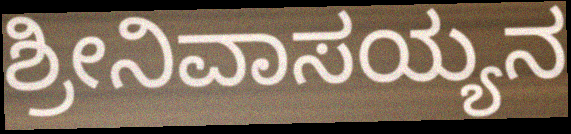
ಶ್ರೀನಿವಾಸಯ್ಯನ